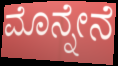
ಮೊನ್ನೇನೆ